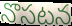
నొసటన